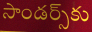
సాండర్స్‌కు